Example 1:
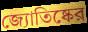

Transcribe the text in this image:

জ্যোতিষ্কের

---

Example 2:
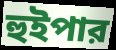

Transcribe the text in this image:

হুইপার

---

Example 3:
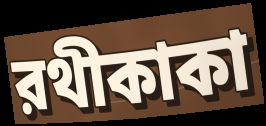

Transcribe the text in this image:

রথীকাকা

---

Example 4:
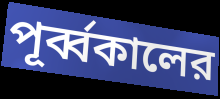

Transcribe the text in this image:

পূর্ব্বকালের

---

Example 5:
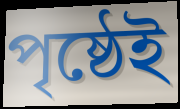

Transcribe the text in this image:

পৃষ্ঠেই